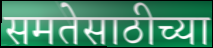
समतेसाठीच्या